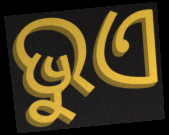
ଭୁଏ